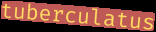
tuberculatus